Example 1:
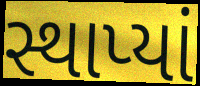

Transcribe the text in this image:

સ્થાપ્યાં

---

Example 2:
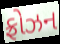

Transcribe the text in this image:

ફ્રોઝન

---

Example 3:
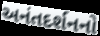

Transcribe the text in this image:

અનંતદર્શનનો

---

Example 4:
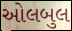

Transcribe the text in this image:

ઓલબુલ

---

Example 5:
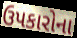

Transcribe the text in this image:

ઉપકારોના